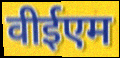
वीईएम